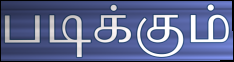
படிக்கும்